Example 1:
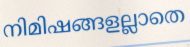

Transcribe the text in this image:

നിമിഷങ്ങളല്ലാതെ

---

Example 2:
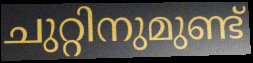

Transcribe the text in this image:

ചുറ്റിനുമുണ്ട്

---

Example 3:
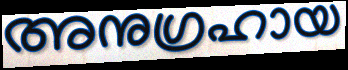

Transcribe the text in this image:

അനുഗ്രഹായ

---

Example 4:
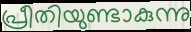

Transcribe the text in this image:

പ്രീതിയുണ്ടാകുന്നു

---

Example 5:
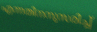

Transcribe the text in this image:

എന്നതിനനുസരിച്ച്